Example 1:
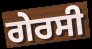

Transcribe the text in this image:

ਗੇਰਸੀ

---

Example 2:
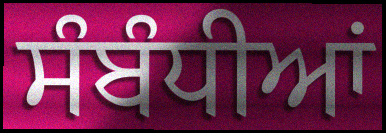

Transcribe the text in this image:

ਸੰਬੰਧੀਆਂ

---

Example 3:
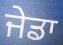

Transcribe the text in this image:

ਜੇਡਾ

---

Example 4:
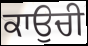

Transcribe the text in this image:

ਕਾਉਚੀ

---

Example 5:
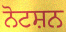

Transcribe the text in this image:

ਨੋਟਸ਼ਨ